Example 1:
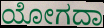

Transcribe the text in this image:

ಯೋಗದಾ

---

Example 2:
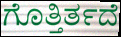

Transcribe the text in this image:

ಗೊತ್ತಿರ್ತದೆ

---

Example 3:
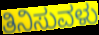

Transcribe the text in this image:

ತಿನಿಸುವಳು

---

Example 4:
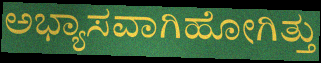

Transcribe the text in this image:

ಅಭ್ಯಾಸವಾಗಿಹೋಗಿತ್ತು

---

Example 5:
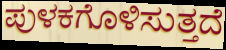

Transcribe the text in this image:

ಪುಳಕಗೊಳಿಸುತ್ತದೆ